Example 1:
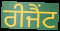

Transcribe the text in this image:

ਰੀਜੈਂਟ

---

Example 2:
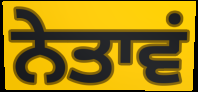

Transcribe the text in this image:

ਨੇਤਾਵਂ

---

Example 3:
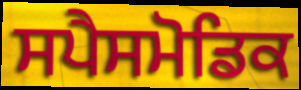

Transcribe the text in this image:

ਸਪੈਸਮੋਡਿਕ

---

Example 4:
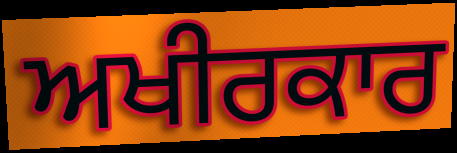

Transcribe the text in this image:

ਅਖੀਰਕਾਰ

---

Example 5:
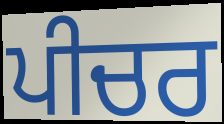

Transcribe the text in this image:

ਪੀਚਰ